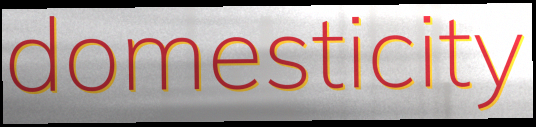
domesticity